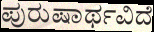
ಪುರುಷಾರ್ಥವಿದೆ